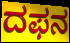
ದಫನ